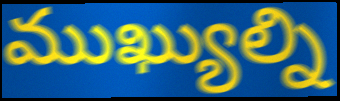
ముఖ్యుల్ని